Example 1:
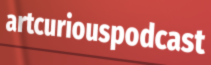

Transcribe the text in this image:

artcuriouspodcast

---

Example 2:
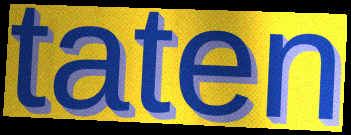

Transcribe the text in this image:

taten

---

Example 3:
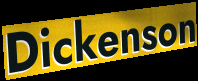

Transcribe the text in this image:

Dickenson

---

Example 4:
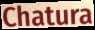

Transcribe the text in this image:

Chatura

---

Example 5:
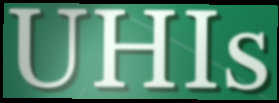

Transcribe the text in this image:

UHIs